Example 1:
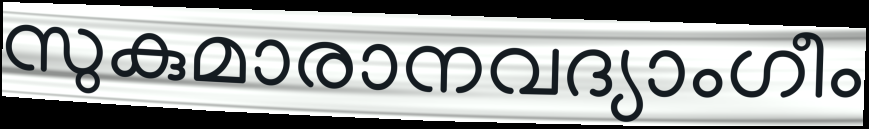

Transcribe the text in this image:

സുകുമാരാനവദ്യാംഗീം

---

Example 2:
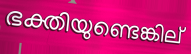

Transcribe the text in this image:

ഭക്തിയുണ്ടെങ്കില്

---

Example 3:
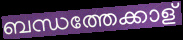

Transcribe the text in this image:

ബന്ധത്തേക്കാള്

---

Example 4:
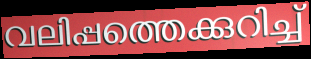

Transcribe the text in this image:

വലിപ്പത്തെക്കുറിച്ച്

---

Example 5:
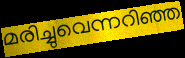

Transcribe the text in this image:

മരിച്ചുവെന്നറിഞ്ഞ